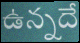
ఉన్నదే